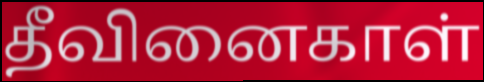
தீவினைகாள்